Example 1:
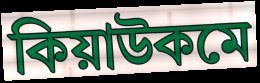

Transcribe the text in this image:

কিয়াউকমে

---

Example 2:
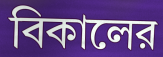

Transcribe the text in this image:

বিকালের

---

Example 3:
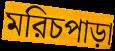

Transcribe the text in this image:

মরিচপাড়া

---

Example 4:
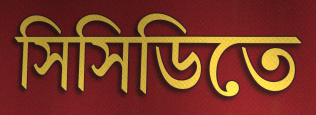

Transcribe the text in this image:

সিসিডিতে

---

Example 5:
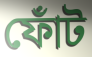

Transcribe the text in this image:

ফোঁট